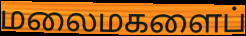
மலைமகளைப்